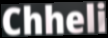
Chheli